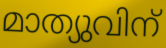
മാത്യുവിന്